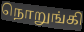
நொறுங்கி